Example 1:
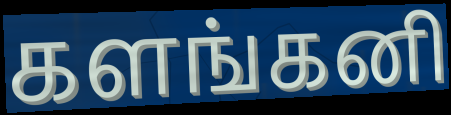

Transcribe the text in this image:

களங்கனி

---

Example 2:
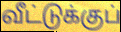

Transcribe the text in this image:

வீட்டுக்குப்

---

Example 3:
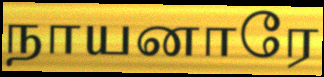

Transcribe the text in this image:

நாயனாரே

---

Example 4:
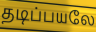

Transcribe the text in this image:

தடிப்பயலே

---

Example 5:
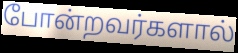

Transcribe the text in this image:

போன்றவர்களால்